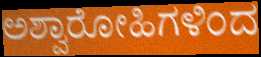
ಅಶ್ವಾರೋಹಿಗಳಿಂದ